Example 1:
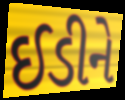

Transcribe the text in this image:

ઈડીને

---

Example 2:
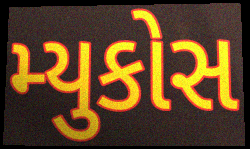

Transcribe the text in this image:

મ્યુકોસ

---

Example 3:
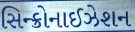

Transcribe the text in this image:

સિન્ક્રોનાઈઝેશન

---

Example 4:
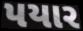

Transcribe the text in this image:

પયાર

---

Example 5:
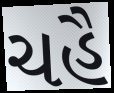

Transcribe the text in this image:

ચહૈ